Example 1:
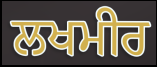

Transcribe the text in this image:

ਲਖਮੀਰ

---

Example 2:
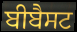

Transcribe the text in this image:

ਬੀਬੈਸਟ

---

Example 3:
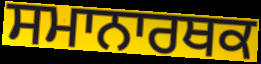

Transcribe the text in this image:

ਸਮਾਨਾਰਥਕ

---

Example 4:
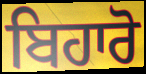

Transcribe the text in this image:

ਬਿਹਾਰੋ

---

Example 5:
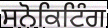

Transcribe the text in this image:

ਸਨੋਕਿਟਿੰਗ